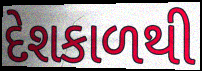
દેશકાળથી